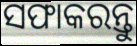
ସଫାକରନ୍ତୁ